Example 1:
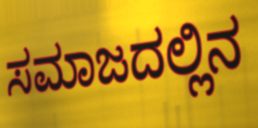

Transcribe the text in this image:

ಸಮಾಜದಲ್ಲಿನ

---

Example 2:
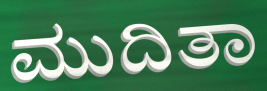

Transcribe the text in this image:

ಮುದಿತಾ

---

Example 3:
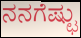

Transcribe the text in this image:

ನನಗೆಷ್ಟು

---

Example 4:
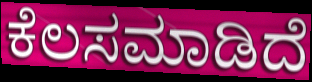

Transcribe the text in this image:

ಕೆಲಸಮಾಡಿದೆ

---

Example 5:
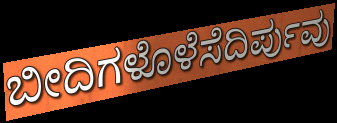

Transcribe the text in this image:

ಬೀದಿಗಳೊಳೆಸೆದಿರ್ಪುವು